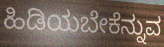
ಹಿಡಿಯಬೇಕೆನ್ನುವ